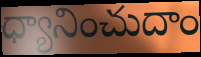
ధ్యానించుదాం